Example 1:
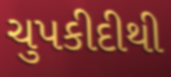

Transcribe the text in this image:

ચુપકીદીથી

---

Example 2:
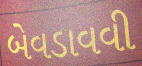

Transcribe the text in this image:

બેવડાવવી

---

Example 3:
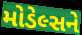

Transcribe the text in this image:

મોડેલ્સને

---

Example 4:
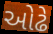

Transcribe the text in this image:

ઓઢે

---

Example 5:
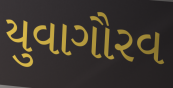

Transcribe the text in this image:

યુવાગૌરવ